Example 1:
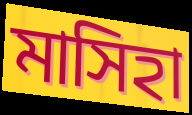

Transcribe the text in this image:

মাসিহা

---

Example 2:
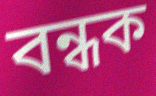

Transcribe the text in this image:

বন্ধক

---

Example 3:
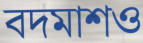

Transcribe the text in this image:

বদমাশও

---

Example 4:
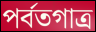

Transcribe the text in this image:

পর্বতগাত্র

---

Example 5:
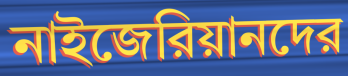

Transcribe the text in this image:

নাইজেরিয়ানদের